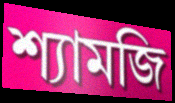
শ্যামজি